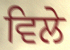
ਵਿਲੇ